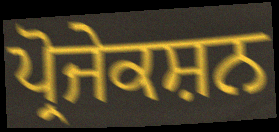
ਪ੍ਰੋਜੇਕਸ਼ਨ